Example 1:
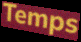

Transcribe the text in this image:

Temps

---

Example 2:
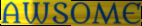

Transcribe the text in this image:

AWSOME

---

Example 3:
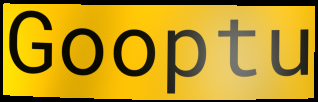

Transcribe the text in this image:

Gooptu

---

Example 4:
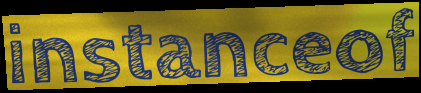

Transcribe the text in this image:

instanceof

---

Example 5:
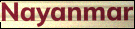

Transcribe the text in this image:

Nayanmar